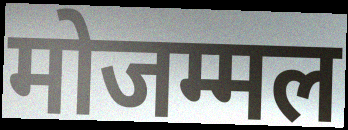
मोजम्मल